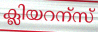
ക്ലിയറന്സ്